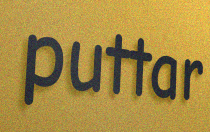
puttar